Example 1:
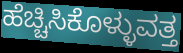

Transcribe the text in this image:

ಹೆಚ್ಚಿಸಿಕೊಳ್ಳುವತ್ತ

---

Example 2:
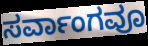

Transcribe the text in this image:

ಸರ್ವಾಂಗವೂ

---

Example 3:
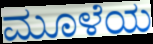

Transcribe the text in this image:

ಮೂಳೆಯ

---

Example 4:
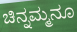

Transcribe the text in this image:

ಚಿನ್ನಮ್ಮನೂ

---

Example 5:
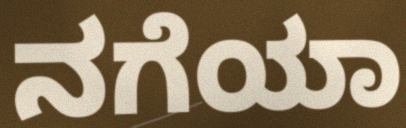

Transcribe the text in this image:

ನಗೆಯಾ